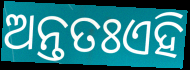
ଅନ୍ତତଃଏହି